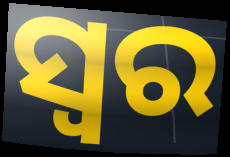
ସ୍ବର